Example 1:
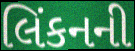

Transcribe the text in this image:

લિંકનની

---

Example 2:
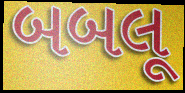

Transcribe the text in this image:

બબલૂ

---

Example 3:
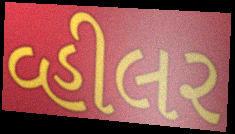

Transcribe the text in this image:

વ્હીલર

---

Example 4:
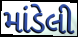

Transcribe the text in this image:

માંડેલી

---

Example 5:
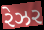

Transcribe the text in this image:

રેઝર